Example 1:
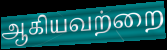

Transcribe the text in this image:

ஆகியவற்றை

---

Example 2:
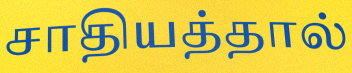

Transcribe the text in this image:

சாதியத்தால்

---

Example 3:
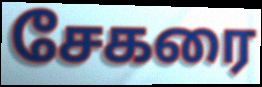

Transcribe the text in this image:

சேகரை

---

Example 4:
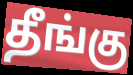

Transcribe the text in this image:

தீங்கு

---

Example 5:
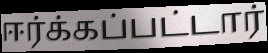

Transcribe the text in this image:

ஈர்க்கப்பட்டார்